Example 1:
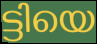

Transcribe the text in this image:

ട്ടിയെ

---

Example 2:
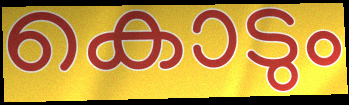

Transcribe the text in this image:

കൊടും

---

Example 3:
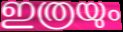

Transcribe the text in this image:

ഇത്രയും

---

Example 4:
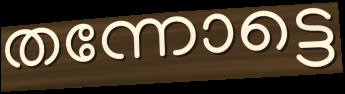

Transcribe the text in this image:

തന്നോട്ടെ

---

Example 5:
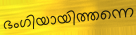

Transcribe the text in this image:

ഭംഗിയായിത്തന്നെ